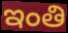
ఇంతి